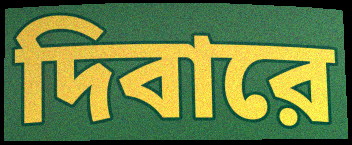
দিবারে